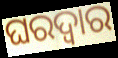
ଘରଦ୍ବାର